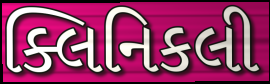
ક્લિનિકલી